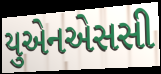
યુએનએસસી